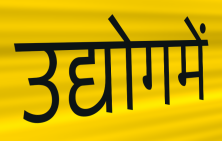
उद्योगमें